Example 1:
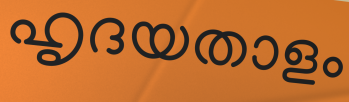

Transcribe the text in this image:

ഹൃദയതാളം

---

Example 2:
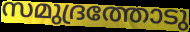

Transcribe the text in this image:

സമുദ്രത്തോടു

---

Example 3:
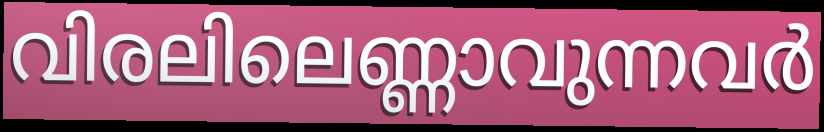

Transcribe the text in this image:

വിരലിലെണ്ണാവുന്നവർ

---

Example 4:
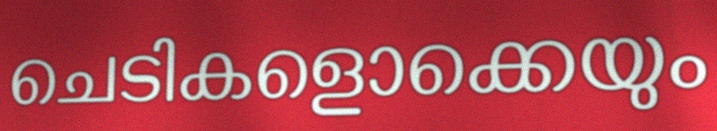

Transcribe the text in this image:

ചെടികളൊക്കെയും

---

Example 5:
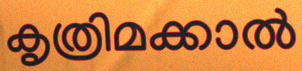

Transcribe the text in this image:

കൃത്രിമക്കാൽ